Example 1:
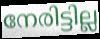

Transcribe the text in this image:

നേരിട്ടില്ല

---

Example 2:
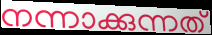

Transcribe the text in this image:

നന്നാക്കുന്നത്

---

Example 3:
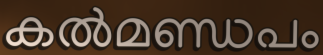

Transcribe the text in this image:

കൽമണ്ഡപം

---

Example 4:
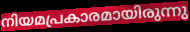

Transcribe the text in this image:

നിയമപ്രകാരമായിരുന്നു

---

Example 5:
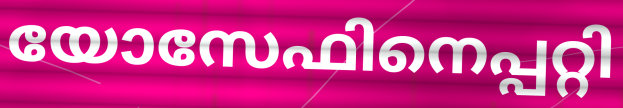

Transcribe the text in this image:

യോസേഫിനെപ്പറ്റി